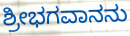
ಶ್ರೀಭಗವಾನನು